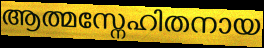
ആത്മസ്നേഹിതനായ